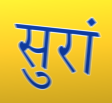
सुरां